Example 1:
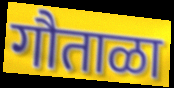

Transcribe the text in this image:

गौताळा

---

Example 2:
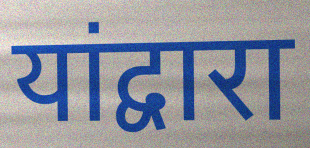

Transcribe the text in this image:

यांद्वारा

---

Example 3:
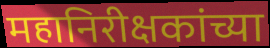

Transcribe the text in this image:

महानिरीक्षकांच्या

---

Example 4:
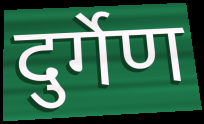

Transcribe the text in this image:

दुर्गेण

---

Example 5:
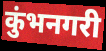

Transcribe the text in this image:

कुंभनगरी